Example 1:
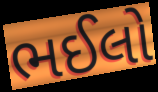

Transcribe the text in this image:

ભઈલો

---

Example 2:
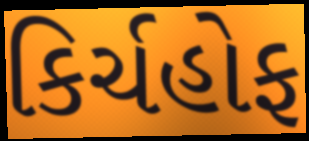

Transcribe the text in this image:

કિર્ચહોફ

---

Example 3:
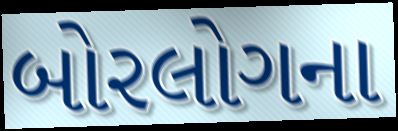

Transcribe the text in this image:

બોરલોગના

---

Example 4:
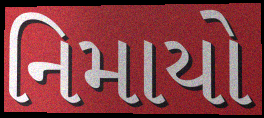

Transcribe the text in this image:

નિમાયો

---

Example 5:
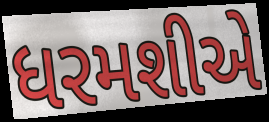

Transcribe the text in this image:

ધરમશીએ